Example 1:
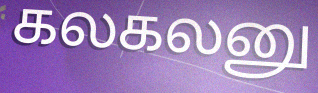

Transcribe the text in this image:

கலகலனு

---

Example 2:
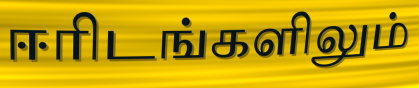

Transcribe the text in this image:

ஈரிடங்களிலும்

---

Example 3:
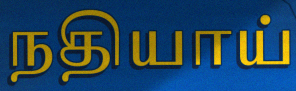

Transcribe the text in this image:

நதியாய்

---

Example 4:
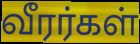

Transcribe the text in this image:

வீரர்கள்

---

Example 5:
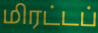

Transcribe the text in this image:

மிரட்டப்